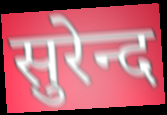
सुरेन्द